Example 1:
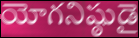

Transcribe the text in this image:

యోగనిష్ఠుడై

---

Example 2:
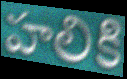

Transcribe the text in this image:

హలికి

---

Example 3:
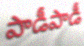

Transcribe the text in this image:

పాడీపాడీ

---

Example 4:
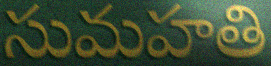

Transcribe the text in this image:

సుమహతి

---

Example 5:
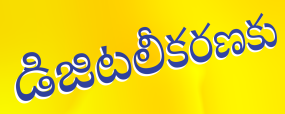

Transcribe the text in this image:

డిజిటలీకరణకు